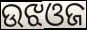
ଉଝଓଜ